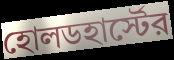
হোলডহার্স্টের